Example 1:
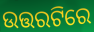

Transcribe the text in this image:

ଉତ୍ତରଟିରେ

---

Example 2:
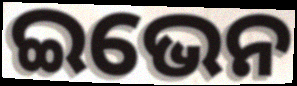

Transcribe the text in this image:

ଇଭେନ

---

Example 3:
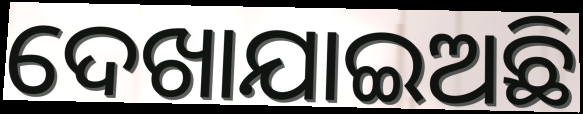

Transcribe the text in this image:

ଦେଖାଯାଇଅଛି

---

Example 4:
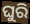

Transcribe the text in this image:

ଘୁରି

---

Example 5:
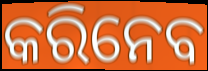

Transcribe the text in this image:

କରିନେବ